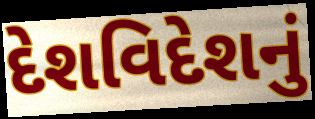
દેશવિદેશનું